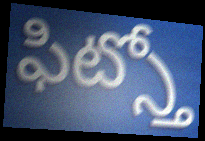
ఫిట్స్తో